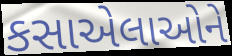
કસાએલાઓને